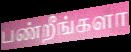
பண்றீங்களா